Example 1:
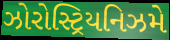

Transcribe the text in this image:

ઝોરોસ્ટ્રિયનિઝમે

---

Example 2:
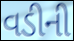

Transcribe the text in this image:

વડીની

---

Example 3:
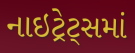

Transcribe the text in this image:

નાઇટ્રેટ્સમાં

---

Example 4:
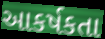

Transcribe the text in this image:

આકર્ષકતા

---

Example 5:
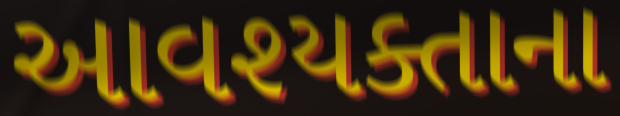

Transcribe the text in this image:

આવશ્યક્તાના